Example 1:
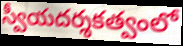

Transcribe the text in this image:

స్వీయదర్శకత్వంలో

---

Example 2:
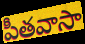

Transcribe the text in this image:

పీతవాసా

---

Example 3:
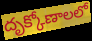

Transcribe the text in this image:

దృక్కోణాలలో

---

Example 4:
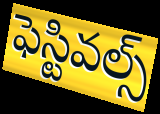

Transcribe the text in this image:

ఫెస్టివల్స్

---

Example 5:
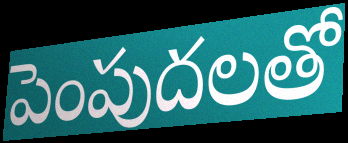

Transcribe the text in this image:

పెంపుదలతో